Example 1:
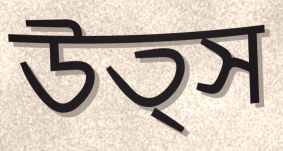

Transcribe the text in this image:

উত্স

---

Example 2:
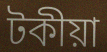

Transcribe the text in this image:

টকীয়া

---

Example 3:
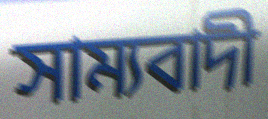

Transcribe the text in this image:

সাম্যবাদী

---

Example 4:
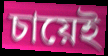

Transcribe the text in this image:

চায়েই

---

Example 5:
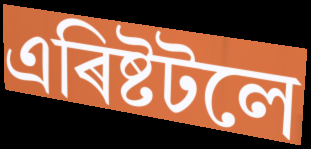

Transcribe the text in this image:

এৰিষ্টটলে